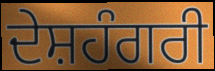
ਦੇਸ਼ਹੰਗਰੀ